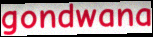
gondwana